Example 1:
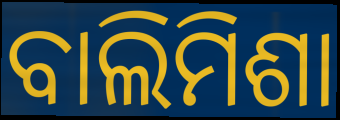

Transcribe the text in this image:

ବାଲିମିଶା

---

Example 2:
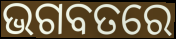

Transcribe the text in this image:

ଭଗବତରେ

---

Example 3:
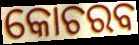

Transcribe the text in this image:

କୋଚରବ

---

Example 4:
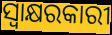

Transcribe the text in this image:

ସ୍ୱାକ୍ଷରକାରୀ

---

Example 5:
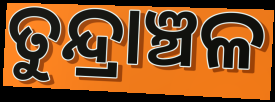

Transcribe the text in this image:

ତୁନ୍ଦ୍ରାଞ୍ଚଳ